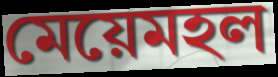
মেয়েমহল